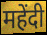
महेंदी